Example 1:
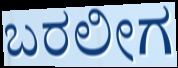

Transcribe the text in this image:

ಬರಲೀಗ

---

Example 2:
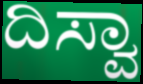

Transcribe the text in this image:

ದಿಸ್ವಾ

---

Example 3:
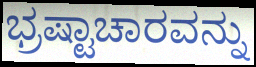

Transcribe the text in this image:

ಭ್ರಷ್ಟಾಚಾರವನ್ನು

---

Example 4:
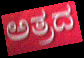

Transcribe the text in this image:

ಅತ್ರದ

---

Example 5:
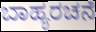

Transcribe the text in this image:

ಬಾಹ್ಯರಚನೆ